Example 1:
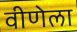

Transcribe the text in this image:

वीणेला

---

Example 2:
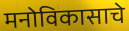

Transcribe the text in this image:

मनोविकासाचे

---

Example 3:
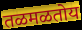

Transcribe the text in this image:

तळमळतोय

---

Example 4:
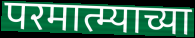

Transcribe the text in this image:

परमात्म्याच्या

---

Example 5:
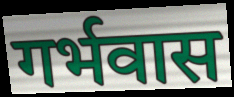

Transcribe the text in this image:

गर्भवास